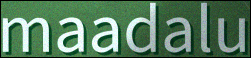
maadalu